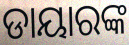
ଡାୟାରଙ୍କ